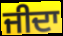
ਜੀਦਾ